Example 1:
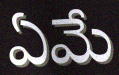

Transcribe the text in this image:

ఏమే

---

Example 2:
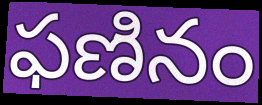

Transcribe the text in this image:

ఫణినం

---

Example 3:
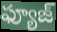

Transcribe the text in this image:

ఫ్యూజ్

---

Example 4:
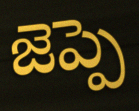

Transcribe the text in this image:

జెప్పె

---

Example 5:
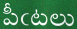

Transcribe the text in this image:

పీఁటలు